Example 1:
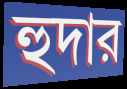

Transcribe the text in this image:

হুদার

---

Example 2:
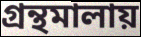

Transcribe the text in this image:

গ্রন্থমালায়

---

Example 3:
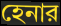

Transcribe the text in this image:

হেনার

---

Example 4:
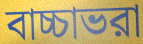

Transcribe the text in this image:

বাচ্চাভরা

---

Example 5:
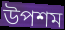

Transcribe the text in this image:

উপশম